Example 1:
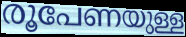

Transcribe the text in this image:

രൂപേണയുള്ള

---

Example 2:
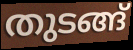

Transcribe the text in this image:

തുടങ്ങ്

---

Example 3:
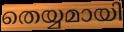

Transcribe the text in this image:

തെയ്യമായി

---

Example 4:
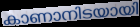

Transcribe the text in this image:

കാണാനിടയായി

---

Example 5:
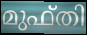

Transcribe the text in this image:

മുഫ്തി